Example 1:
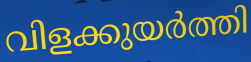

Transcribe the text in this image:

വിളക്കുയർത്തി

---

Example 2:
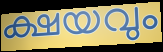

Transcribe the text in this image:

ക്ഷയവും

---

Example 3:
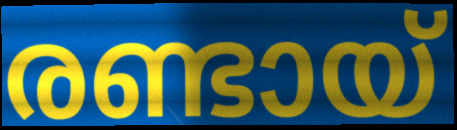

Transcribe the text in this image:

രണ്ടായ്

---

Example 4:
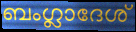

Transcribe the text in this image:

ബംഗ്ലാദേശ്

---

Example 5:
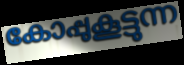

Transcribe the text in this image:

കോപ്പുകൂട്ടുന്ന